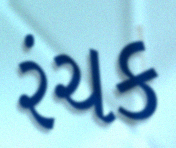
રંચક